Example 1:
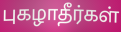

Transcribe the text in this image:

புகழாதீர்கள்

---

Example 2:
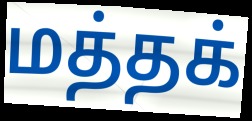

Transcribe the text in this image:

மத்தக்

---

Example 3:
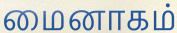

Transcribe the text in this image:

மைனாகம்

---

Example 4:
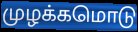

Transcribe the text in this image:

முழக்கமொடு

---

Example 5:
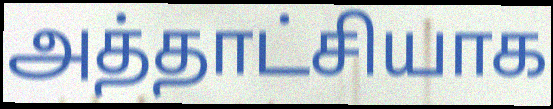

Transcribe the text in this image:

அத்தாட்சியாக